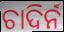
ଚାଦିର୍ନ